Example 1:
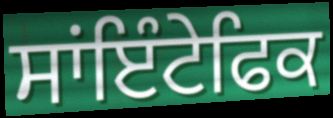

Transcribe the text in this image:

ਸਾਂਇੰਟੇਫਿਕ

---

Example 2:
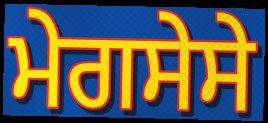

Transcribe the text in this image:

ਮੇਗਸੇਸੇ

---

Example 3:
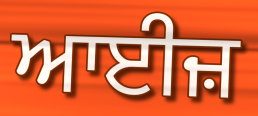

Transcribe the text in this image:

ਆਈਜ਼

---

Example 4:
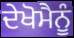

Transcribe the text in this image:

ਦੇਖੋਮੈਨੂੰ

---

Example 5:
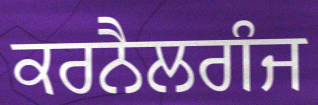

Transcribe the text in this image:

ਕਰਨੈਲਗੰਜ